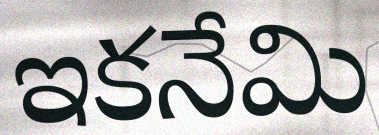
ఇకనేమి